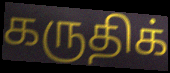
கருதிக்